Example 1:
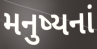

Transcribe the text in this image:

મનુષ્યનાં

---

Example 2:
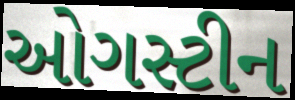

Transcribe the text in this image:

ઓગસ્ટીન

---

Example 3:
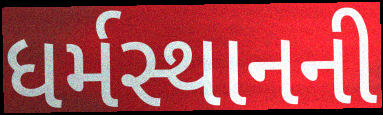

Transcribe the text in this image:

ધર્મસ્થાનની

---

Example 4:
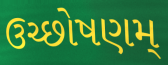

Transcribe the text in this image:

ઉચ્છોષણમ્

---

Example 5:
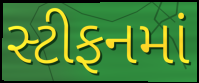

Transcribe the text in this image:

સ્ટીફનમાં